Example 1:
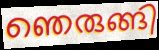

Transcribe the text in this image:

ഞെരുങ്ങി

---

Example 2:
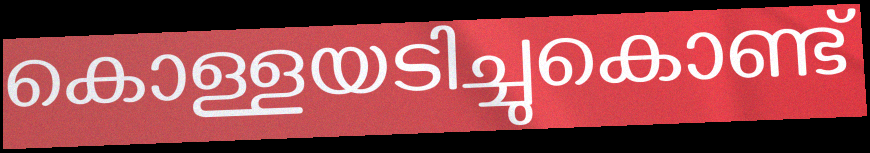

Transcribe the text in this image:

കൊള്ളയടിച്ചുകൊണ്ട്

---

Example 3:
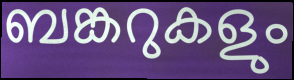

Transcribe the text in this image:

ബങ്കറുകളും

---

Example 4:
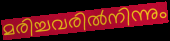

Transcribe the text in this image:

മരിച്ചവരിൽനിന്നും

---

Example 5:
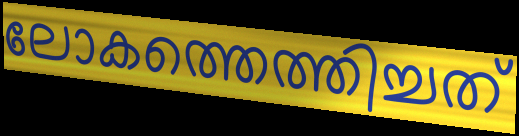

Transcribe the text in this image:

ലോകത്തെത്തിച്ചത്